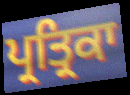
ਪ੍ਰਤ੍ਰਿਕਾ